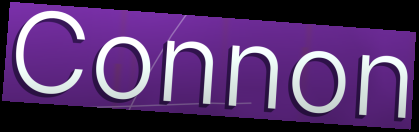
Connon